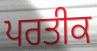
ਪਰਤੀਕ